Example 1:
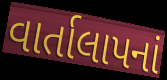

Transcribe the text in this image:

વાર્તાલાપનાં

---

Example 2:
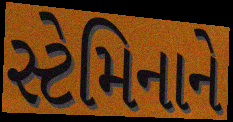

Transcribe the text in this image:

સ્ટેમિનાને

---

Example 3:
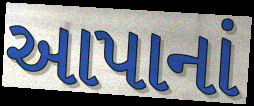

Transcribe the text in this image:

આપાનાં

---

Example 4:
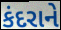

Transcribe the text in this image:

કંદરાને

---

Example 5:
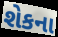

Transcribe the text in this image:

શેકના